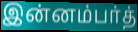
இன்னம்பர்த்